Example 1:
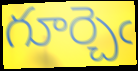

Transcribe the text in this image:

గూర్చెఁ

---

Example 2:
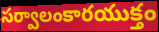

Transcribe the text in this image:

సర్వాలంకారయుక్తం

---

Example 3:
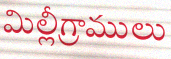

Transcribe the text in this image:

మిల్లీగ్రాములు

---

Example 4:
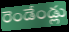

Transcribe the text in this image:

రెండేండ్లు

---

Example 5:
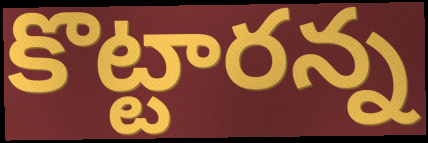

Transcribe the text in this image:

కొట్టారన్న